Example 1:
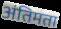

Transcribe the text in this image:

अंतिमता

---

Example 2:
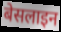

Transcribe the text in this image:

बेसलाइन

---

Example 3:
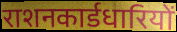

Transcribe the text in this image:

राशनकार्डधारियों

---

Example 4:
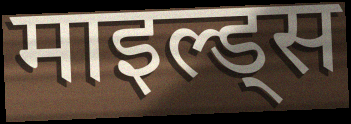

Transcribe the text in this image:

माइल्ड्स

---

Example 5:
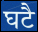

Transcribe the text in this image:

घटै